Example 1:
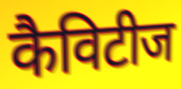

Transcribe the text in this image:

कैविटीज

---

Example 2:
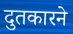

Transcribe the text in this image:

दुतकारने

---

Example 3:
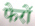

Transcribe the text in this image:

फेरों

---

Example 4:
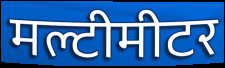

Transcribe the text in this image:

मल्टीमीटर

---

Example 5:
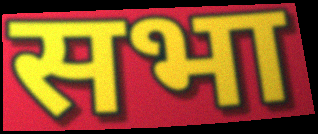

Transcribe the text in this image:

सभा